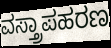
ವಸ್ತ್ರಾಪಹರಣ